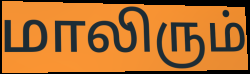
மாலிரும்